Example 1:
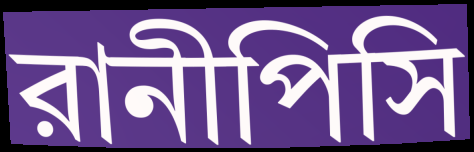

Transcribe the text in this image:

রানীপিসি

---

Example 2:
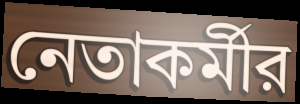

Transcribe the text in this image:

নেতাকর্মীর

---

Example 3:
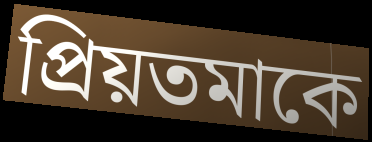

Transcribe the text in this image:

প্রিয়তমাকে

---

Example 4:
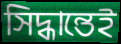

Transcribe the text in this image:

সিদ্ধান্তেই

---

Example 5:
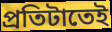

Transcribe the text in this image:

প্রতিটাতেই